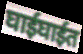
घाईघाईत